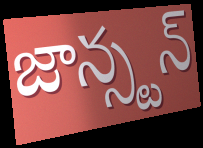
జాన్స్టన్